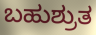
ಬಹುಶ್ರುತ